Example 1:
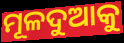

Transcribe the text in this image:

ମୂଳଦୁଆକୁ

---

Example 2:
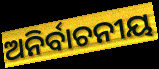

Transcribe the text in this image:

ଅନିର୍ବାଚନୀୟ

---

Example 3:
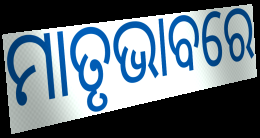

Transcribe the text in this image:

ମାତୃଭାବରେ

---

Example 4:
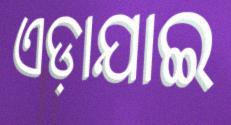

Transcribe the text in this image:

ଏଡ଼ାଯାଇ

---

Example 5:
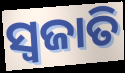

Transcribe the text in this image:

ସ୍ୱଜାତି